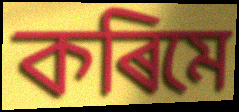
কৰিমে